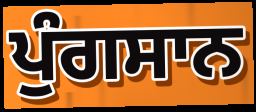
ਪੁੰਗਸਾਨ